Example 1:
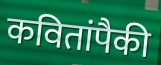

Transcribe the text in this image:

कवितांपैकी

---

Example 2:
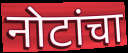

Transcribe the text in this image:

नोटांचा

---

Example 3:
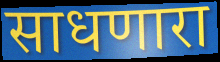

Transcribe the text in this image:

साधणारा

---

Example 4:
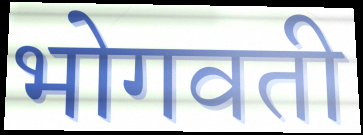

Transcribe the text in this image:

भोगवती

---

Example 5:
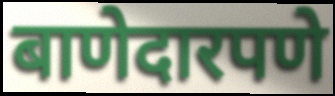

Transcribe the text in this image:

बाणेदारपणे